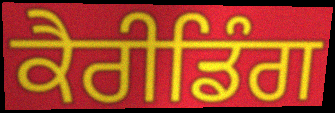
ਕੈਰੀਡਿੰਗ